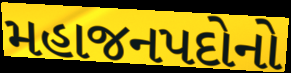
મહાજનપદોનો